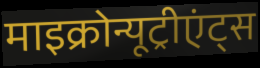
माइक्रोन्यूट्रीएंट्स